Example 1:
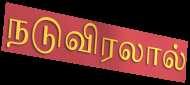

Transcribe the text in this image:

நடுவிரலால்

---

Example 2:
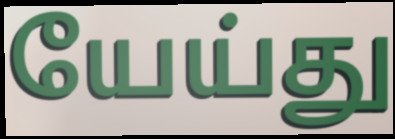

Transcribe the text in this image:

யேய்து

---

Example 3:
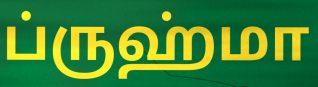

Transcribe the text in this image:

ப்ருஹ்மா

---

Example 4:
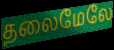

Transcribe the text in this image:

தலைமேலே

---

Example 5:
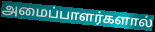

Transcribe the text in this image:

அமைப்பாளர்களால்